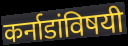
कर्नाडांविषयी